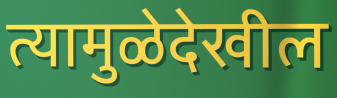
त्यामुळेदेखील